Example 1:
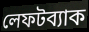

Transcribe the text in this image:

লেফটব্যাক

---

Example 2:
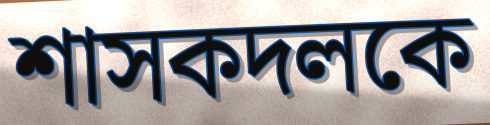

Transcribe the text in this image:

শাসকদলকে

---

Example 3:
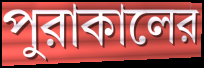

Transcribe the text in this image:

পুরাকালের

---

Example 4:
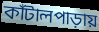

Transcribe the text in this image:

কাঁটালপাড়ায়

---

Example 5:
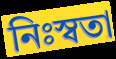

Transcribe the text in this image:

নিঃস্বতা